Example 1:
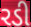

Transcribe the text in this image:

રડી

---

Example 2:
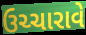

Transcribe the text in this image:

ઉચ્ચારાવે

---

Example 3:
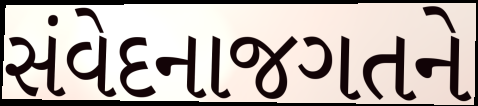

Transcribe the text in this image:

સંવેદનાજગતને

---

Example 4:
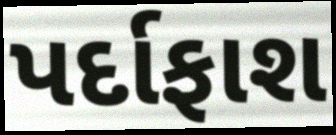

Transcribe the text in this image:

પર્દાફાશ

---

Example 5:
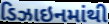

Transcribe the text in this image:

ડિઝાઇનમાંથી